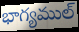
భాగ్యముల్